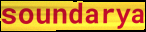
soundarya